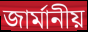
জার্মানীয়